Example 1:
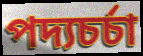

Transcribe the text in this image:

পদ্যচর্চা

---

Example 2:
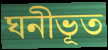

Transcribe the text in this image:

ঘনীভূত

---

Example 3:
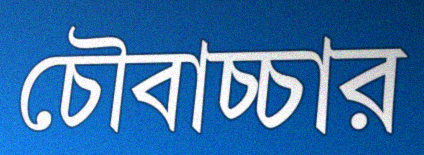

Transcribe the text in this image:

চৌবাচ্চার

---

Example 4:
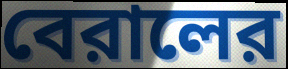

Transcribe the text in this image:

বেরালের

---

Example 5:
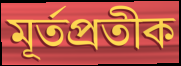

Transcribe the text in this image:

মূর্তপ্রতীক